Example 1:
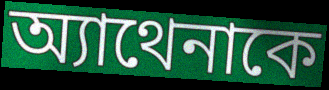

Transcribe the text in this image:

অ্যাথেনাকে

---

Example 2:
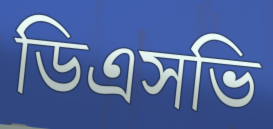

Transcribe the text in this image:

ডিএসভি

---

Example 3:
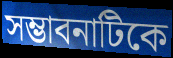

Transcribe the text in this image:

সম্ভাবনাটিকে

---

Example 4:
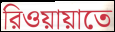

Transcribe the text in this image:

রিওয়ায়াতে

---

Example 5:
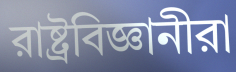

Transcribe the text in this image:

রাষ্ট্রবিজ্ঞানীরা